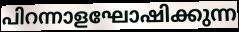
പിറന്നാളഘോഷിക്കുന്ന